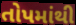
તોપમાંથી